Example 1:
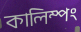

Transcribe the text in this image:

কালিম্পং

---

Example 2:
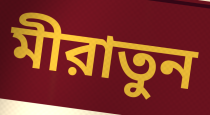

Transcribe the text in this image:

মীরাতুন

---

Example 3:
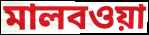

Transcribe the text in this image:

মালবওয়া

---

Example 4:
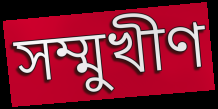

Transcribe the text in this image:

সম্মুখীণ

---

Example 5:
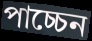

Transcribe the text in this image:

পাচ্চেন